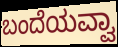
ಬಂದೆಯವ್ವಾ